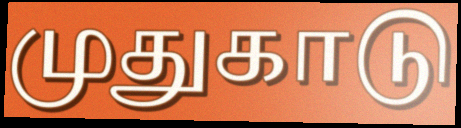
முதுகாடு